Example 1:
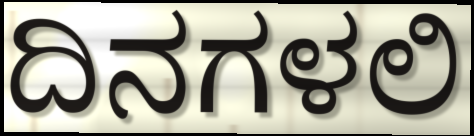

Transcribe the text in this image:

ದಿನಗಳಲಿ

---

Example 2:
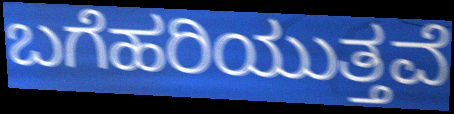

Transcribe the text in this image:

ಬಗೆಹರಿಯುತ್ತವೆ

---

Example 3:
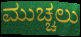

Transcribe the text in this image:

ಮುಚ್ಚಲು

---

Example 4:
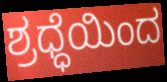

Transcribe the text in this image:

ಶ್ರಧ್ಧೆಯಿಂದ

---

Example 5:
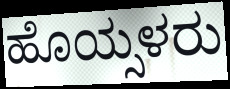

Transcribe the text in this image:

ಹೊಯ್ಸಳರು